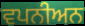
ਵਪਨੀਅਨ